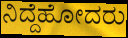
ನಿದ್ದೆಹೋದರು